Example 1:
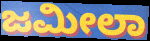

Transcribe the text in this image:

ಜಮೀಲಾ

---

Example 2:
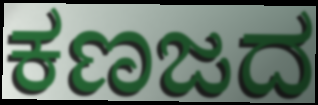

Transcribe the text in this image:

ಕಣಜದ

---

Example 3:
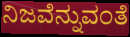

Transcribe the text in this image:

ನಿಜವೆನ್ನುವಂತೆ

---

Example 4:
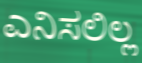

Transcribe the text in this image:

ಎನಿಸಲಿಲ್ಲ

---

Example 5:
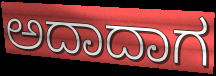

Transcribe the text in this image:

ಅದಾದಾಗ